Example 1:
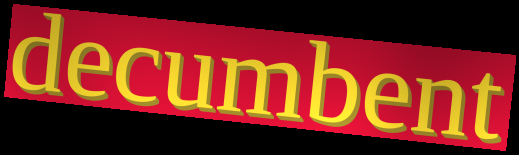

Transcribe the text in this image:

decumbent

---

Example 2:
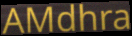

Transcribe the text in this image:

AMdhra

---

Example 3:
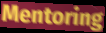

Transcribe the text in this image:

Mentoring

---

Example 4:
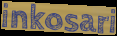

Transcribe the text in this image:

inkosari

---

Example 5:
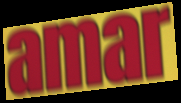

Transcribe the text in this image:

amar